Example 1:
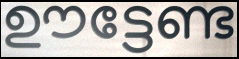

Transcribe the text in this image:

ഊട്ടേണ്ട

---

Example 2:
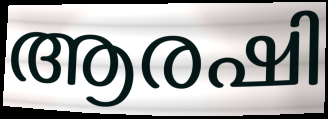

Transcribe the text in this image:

ആരഷി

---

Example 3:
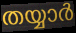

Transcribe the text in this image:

തയ്യാർ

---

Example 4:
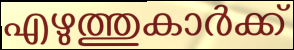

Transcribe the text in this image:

എഴുത്തുകാർക്ക്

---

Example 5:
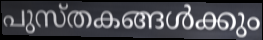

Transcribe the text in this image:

പുസ്തകങ്ങൾക്കും